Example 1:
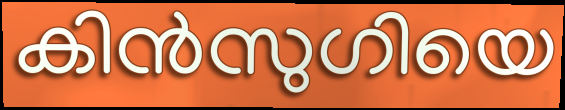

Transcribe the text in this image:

കിൻസുഗിയെ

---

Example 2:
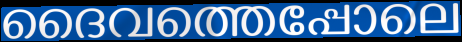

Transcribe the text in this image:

ദൈവത്തെപ്പോലെ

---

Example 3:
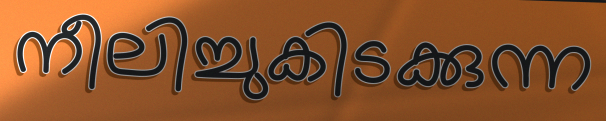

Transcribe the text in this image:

നീലിച്ചുകിടക്കുന്ന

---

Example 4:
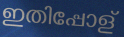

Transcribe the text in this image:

ഇതിപ്പോള്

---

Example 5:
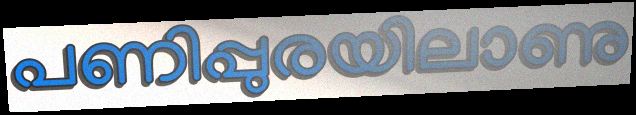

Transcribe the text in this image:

പണിപ്പുരയിലാണു